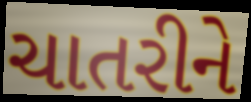
ચાતરીને